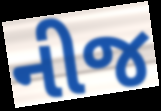
નીજ